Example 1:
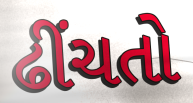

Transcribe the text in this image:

ઢીંચતો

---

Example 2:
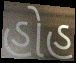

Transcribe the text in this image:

હોહ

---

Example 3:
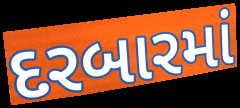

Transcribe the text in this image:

દરબારમાં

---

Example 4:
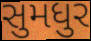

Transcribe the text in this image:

સુમધુર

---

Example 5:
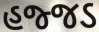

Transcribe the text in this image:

હજ્જડ